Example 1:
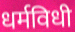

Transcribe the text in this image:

धर्मविधी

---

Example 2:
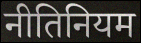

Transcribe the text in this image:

नीतिनियम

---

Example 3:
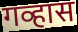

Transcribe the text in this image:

गव्हास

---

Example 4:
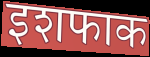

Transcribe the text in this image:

इशफाक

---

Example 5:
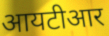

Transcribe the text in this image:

आयटीआर